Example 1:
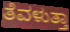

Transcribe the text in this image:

ತೆವಳುತ್ತಾ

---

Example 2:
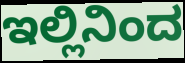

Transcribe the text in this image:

ಇಲ್ಲಿನಿಂದ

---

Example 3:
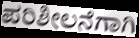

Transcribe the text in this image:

ಪರಿಶೀಲನೆಗಾಗಿ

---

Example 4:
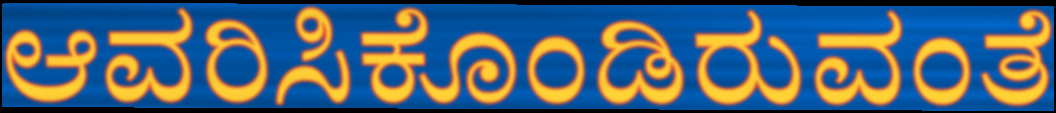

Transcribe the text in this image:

ಆವರಿಸಿಕೊಂಡಿರುವಂತೆ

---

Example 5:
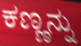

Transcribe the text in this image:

ಕಣ್ಣನ್ನು